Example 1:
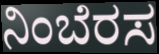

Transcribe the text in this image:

ನಿಂಬೆರಸ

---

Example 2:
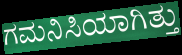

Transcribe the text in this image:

ಗಮನಿಸಿಯಾಗಿತ್ತು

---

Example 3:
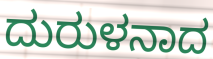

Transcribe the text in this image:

ದುರುಳನಾದ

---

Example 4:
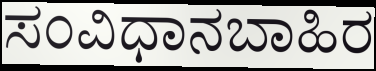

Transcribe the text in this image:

ಸಂವಿಧಾನಬಾಹಿರ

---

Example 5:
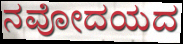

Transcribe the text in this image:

ನವೋದಯದ